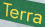
Terra